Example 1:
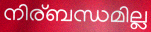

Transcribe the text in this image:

നിര്ബന്ധമില്ല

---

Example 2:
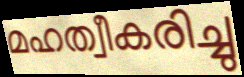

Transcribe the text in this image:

മഹത്വീകരിച്ചു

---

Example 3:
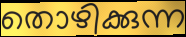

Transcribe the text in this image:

തൊഴിക്കുന്ന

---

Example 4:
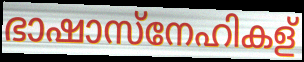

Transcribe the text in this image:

ഭാഷാസ്നേഹികള്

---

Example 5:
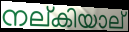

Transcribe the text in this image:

നല്കിയാല്